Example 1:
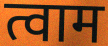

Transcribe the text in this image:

त्वाम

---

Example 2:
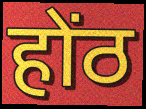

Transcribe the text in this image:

होंठ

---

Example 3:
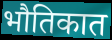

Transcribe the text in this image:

भौतिकात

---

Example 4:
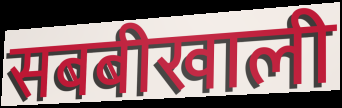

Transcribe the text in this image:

सबबीखाली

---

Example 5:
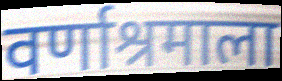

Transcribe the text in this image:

वर्णाश्रमाला